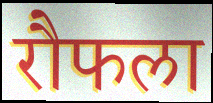
रौफला